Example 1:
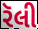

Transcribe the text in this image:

રૅલી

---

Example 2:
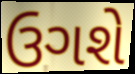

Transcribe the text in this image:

ઉગશે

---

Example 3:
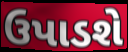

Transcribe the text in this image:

ઉપાડશે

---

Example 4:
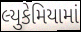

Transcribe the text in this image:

લ્યુકેમિયામાં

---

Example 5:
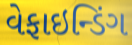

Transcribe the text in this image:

વેફાઇન્ડિંગ